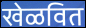
खेळवित